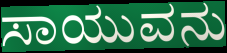
ಸಾಯುವನು